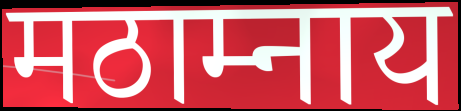
मठाम्नाय